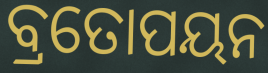
ବ୍ରତୋପୟନ